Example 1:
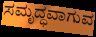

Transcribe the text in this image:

ಸಮೃದ್ಧವಾಗುವ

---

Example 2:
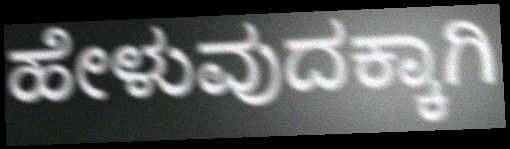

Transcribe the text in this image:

ಹೇಳುವುದಕ್ಕಾಗಿ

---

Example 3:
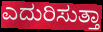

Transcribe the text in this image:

ಎದುರಿಸುತ್ತಾ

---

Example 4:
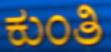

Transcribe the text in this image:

ಕುಂತಿ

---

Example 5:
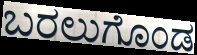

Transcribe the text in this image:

ಬರಲುಗೊಂಡ